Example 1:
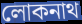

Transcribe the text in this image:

লোকনাথ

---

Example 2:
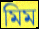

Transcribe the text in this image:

মিম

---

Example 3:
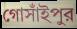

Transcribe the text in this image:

গোসাঁইপুর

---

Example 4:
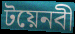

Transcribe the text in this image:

টয়েনবী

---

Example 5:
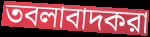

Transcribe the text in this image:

তবলাবাদকরা